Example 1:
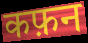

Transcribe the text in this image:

कफ़न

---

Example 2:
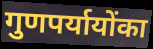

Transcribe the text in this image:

गुणपर्यायोंका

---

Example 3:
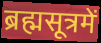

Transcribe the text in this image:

ब्रह्मसूत्रमें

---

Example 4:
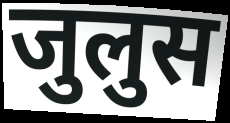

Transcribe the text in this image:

जुलुस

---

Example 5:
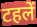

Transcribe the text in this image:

टहलें